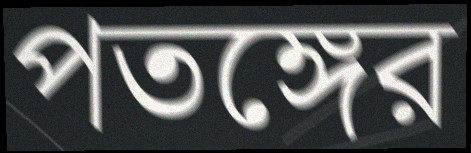
পতঙ্গের